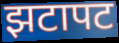
झटापट